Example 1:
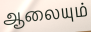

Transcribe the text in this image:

ஆலையும்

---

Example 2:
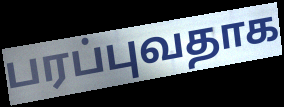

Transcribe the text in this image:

பரப்புவதாக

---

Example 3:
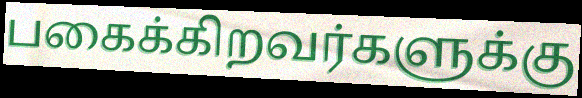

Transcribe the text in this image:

பகைக்கிறவர்களுக்கு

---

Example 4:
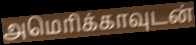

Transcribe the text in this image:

அமெரிக்காவுடன்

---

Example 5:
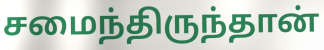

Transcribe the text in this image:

சமைந்திருந்தான்